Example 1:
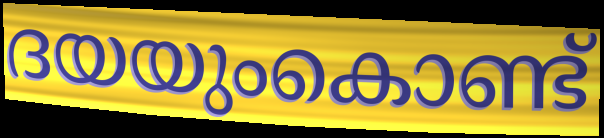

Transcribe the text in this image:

ദയയുംകൊണ്ട്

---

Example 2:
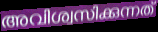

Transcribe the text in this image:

അവിശ്വസിക്കുന്നത്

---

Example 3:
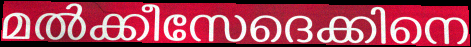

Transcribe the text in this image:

മൽക്കീസേദെക്കിനെ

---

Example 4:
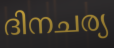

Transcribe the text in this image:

ദിനചര്യ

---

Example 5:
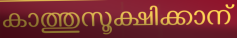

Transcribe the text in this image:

കാത്തുസൂക്ഷിക്കാന്